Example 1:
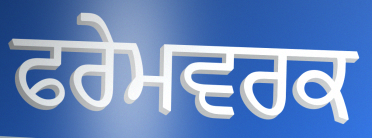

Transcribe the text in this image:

ਫਰੇਮਵਰਕ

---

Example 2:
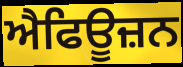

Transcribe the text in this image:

ਐਫਿਊਜ਼ਨ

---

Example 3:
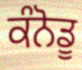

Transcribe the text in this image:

ਕੰਨੋਡੂ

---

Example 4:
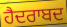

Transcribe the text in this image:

ਹੈਦਰਾਬਦ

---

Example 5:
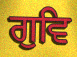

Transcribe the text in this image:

ਗੁਵਿ